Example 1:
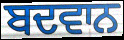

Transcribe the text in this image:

ਬਦਵਾਨ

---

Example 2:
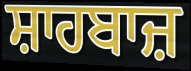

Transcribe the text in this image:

ਸ਼ਾਹਬਾਜ਼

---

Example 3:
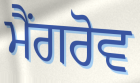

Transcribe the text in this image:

ਮੈਂਗਰੋਵ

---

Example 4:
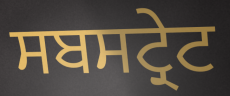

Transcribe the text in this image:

ਸਬਸਟ੍ਰੇਟ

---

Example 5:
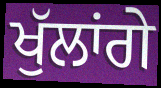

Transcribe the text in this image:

ਖੁੱਲਾਂਗੇ